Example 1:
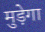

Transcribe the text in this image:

मुड़ेगा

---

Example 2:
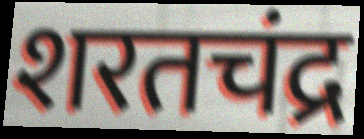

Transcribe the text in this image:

शरतचंद्र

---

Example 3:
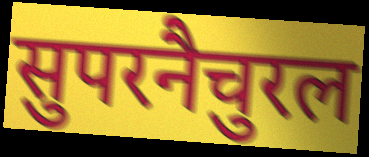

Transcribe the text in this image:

सुपरनैचुरल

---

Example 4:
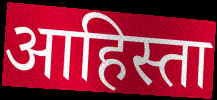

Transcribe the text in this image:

आहिस्ता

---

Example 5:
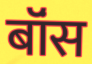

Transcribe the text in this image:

बॉंस